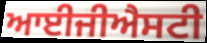
ਆਈਜੀਐਸਟੀ